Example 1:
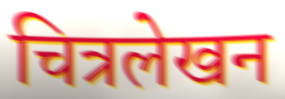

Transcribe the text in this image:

चित्रलेखन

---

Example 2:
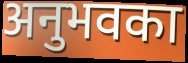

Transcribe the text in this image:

अनुभवका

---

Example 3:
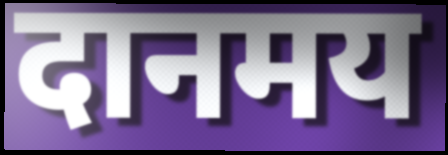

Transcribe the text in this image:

दानमय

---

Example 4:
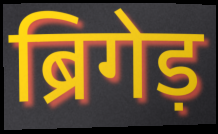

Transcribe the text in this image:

ब्रिगेड़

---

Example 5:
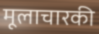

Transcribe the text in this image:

मूलाचारकी